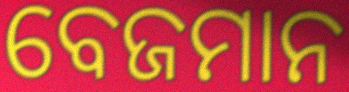
ବେଜମାନ